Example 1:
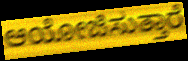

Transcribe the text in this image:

ಆಯೋಜಿಸುತ್ತಾರೆ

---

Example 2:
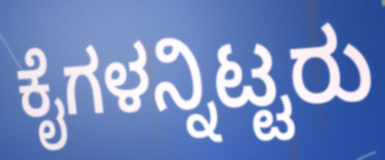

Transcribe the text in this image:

ಕೈಗಳನ್ನಿಟ್ಟರು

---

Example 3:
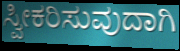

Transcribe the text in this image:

ಸ್ವೀಕರಿಸುವುದಾಗಿ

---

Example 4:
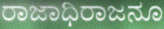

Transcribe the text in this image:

ರಾಜಾಧಿರಾಜನೂ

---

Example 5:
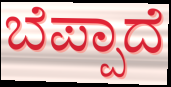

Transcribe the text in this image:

ಬೆಪ್ಪಾದೆ